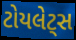
ટોયલેટ્સ